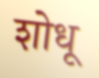
शोधू